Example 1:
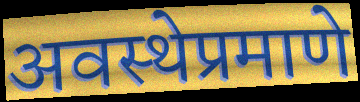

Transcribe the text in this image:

अवस्थेप्रमाणे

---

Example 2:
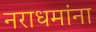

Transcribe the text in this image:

नराधमांना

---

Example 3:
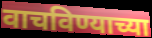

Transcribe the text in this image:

वाचविण्याच्या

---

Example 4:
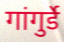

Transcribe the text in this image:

गांगुर्डे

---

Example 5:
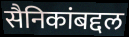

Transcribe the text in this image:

सैनिकांबद्दल